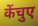
केंचुए